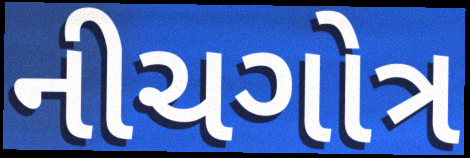
નીચગોત્ર